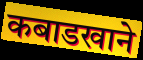
कबाडखाने